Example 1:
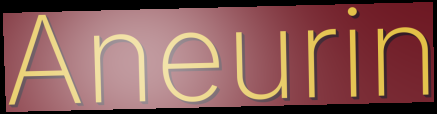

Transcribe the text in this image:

Aneurin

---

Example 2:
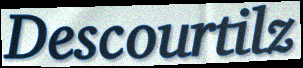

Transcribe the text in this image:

Descourtilz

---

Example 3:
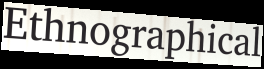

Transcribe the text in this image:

Ethnographical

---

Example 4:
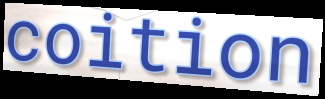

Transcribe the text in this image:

coition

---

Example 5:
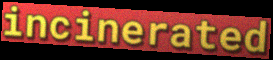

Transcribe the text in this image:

incinerated